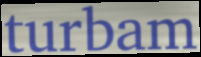
turbam